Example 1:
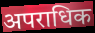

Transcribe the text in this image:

अपराधिक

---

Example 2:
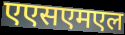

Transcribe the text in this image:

एएसएमएल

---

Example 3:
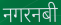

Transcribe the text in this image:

नगरनबी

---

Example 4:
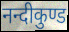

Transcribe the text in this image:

नन्दीकुण्ड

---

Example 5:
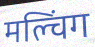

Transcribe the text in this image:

मल्चिंग